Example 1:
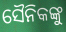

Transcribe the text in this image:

ସୈନିକଙ୍କୁ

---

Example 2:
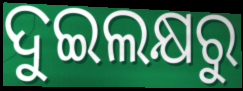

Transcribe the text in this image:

ଦୁଇଲକ୍ଷରୁ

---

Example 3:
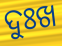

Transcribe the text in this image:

ଦୁଃଖ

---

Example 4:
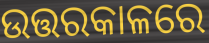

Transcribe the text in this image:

ଉତ୍ତରକାଳରେ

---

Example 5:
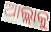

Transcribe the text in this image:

ଆଲ୍ଲାକୁ